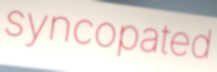
syncopated